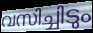
വസിച്ചിടും